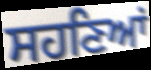
ਸਹਣਿਆਂ